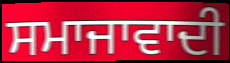
ਸਮਾਜਾਵਾਦੀ